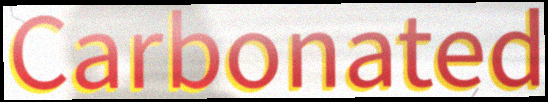
Carbonated